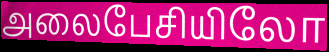
அலைபேசியிலோ